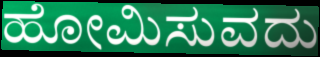
ಹೋಮಿಸುವದು